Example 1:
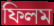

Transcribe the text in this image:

ফিলম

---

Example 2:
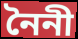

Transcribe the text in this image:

নৈনী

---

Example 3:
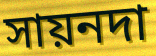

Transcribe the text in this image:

সায়নদা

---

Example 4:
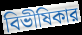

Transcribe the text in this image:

বিভীষিকার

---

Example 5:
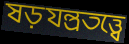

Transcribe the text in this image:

ষড়যন্ত্রতত্ত্বে